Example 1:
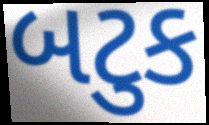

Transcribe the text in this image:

બટુક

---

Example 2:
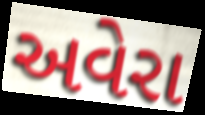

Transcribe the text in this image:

અવેરા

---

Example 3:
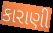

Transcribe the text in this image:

કારાણી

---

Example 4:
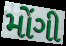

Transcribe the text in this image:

મોંગી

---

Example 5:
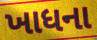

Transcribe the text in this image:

ખાધના